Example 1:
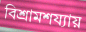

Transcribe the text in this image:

বিশ্রামশয্যায়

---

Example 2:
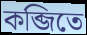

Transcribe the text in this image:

কব্জিতে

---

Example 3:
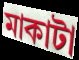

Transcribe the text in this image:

মাকাটা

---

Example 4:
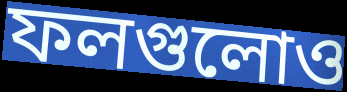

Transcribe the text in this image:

ফলগুলোও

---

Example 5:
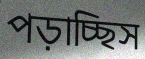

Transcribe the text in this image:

পড়াচ্ছিস